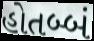
હોતબ્બં